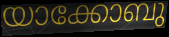
യാക്കോബു